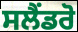
ਸਲੈਂਡਰੋ